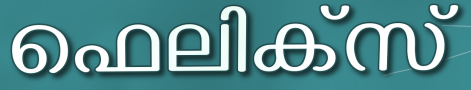
ഫെലിക്‌സ്